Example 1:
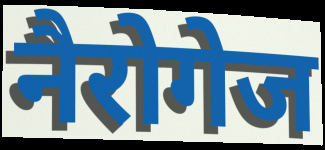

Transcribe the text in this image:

नैरोगेज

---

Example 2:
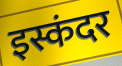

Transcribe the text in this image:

इस्कंदर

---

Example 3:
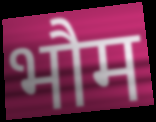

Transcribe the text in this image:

भौम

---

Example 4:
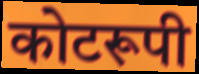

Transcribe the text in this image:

कोटरूपी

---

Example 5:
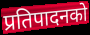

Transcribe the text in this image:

प्रतिपादनको